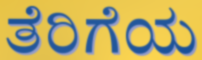
ತೆರಿಗೆಯ